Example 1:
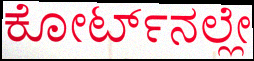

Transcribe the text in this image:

ಕೋರ್ಟ್‌ನಲ್ಲೇ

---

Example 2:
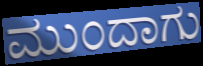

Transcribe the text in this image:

ಮುಂದಾಗು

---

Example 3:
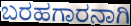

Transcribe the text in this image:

ಬರಹಗಾರನಾಗಿ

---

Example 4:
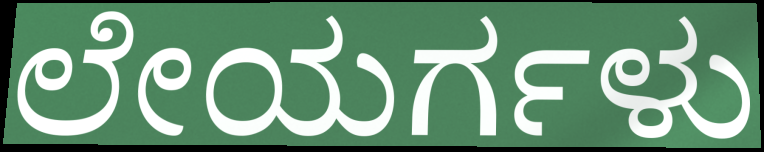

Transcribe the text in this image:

ಲೇಯರ್ಗಳು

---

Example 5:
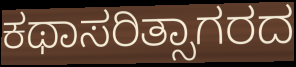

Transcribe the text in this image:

ಕಥಾಸರಿತ್ಸಾಗರದ